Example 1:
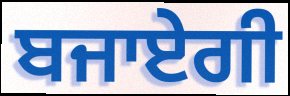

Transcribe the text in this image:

ਬਜਾਏਗੀ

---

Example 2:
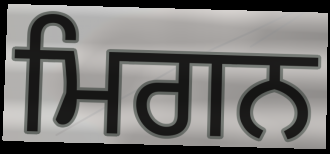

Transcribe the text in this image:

ਮਿਗਨ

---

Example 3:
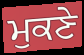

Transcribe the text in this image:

ਮੁਕਣੇ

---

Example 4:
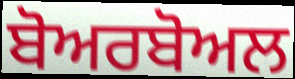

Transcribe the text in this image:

ਬੋਅਰਬੋਅਲ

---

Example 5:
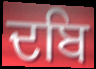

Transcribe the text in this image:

ਦਬਿ